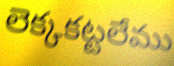
లెక్కకట్టలేము